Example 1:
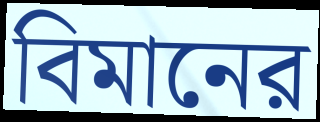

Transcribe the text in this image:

বিমানের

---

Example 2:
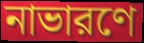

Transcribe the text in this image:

নাভারণে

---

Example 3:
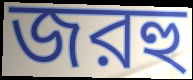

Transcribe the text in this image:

জরহু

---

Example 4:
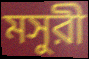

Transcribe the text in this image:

মসুরী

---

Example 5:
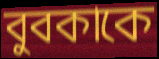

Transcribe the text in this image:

বুবকাকে